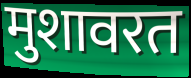
मुशावरत